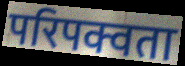
परिपक्वता